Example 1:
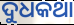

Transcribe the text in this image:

ଦୁଧକଥା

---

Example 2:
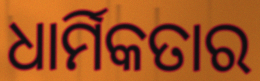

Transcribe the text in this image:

ଧାର୍ମିକତାର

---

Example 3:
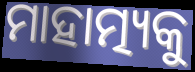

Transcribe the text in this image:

ମାହାତ୍ମ୍ୟକୁ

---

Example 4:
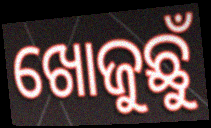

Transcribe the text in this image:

ଖୋଜୁଛୁଁ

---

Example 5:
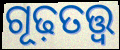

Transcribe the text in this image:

ଗୂଢ଼ତତ୍ତ୍ୱ